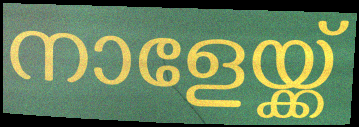
നാളേയ്ക്ക്